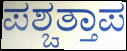
ಪಶ್ಚತ್ತಾಪ